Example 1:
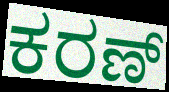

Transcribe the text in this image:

ಕರಣ್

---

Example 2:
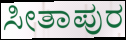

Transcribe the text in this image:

ಸೀತಾಪುರ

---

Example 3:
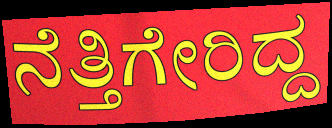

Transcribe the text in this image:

ನೆತ್ತಿಗೇರಿದ್ದ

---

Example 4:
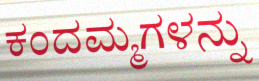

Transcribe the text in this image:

ಕಂದಮ್ಮಗಳನ್ನು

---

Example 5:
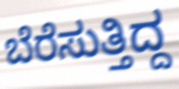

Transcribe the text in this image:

ಬೆರೆಸುತ್ತಿದ್ದ